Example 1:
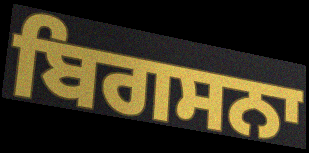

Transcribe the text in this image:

ਬਿਗਸਨਾ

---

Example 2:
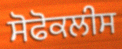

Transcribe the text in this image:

ਸੋਫੋਕਲੀਸ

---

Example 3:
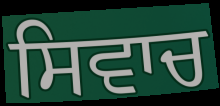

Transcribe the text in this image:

ਸਿਵਾਚ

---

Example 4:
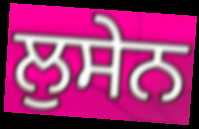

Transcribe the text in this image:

ਲੁਸੇਨ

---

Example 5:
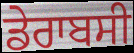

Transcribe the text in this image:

ਡੇਰਾਬਸੀ